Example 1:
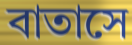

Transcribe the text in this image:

বাতাসে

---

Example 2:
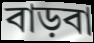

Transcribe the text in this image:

বাড়বা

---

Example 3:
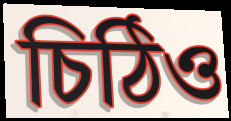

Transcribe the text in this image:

চিঠিও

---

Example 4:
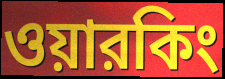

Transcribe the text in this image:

ওয়ারকিং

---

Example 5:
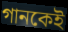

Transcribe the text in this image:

গানকেই